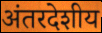
अंतरदेशीय